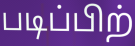
படிப்பிற்